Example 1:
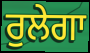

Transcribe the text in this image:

ਰੁਲੇਗਾ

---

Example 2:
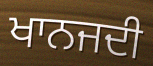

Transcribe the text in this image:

ਖਾਨਜਦੀ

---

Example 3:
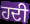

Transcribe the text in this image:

ਹਦੀ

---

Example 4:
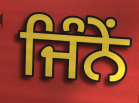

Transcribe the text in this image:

ਜਿੰਨੇਂ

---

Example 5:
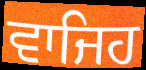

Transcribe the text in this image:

ਵਾਜਿਹ